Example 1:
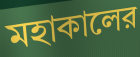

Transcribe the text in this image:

মহাকালের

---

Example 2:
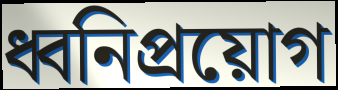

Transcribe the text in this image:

ধ্বনিপ্রয়োগ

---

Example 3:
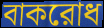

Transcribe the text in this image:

বাকরোধ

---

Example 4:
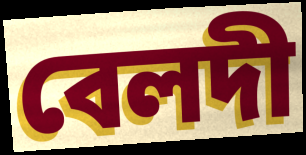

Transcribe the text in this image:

বেলদী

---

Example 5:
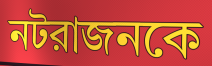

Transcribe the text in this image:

নটরাজনকে